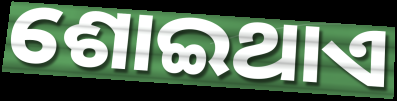
ଶୋଇଥାଏ